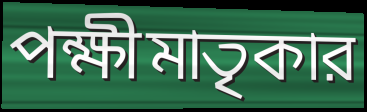
পক্ষীমাতৃকার